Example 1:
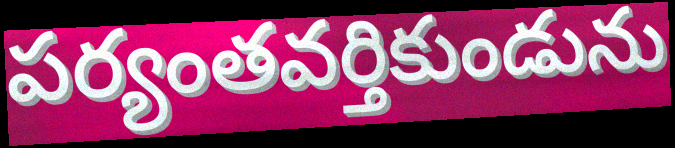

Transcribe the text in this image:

పర్యంతవర్తికుండును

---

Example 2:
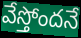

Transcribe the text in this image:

వేస్తోందనే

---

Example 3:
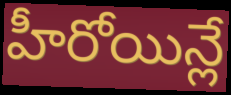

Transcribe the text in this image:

హీరోయిన్లే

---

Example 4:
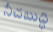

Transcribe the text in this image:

నీచబుద్ధి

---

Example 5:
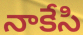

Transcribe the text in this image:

నాకేసి